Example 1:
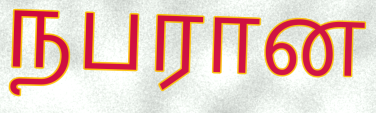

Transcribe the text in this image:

நபரான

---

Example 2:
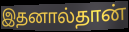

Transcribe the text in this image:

இதனால்தான்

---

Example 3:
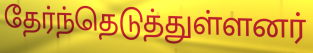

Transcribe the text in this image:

தேர்ந்தெடுத்துள்ளனர்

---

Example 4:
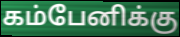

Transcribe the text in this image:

கம்பேனிக்கு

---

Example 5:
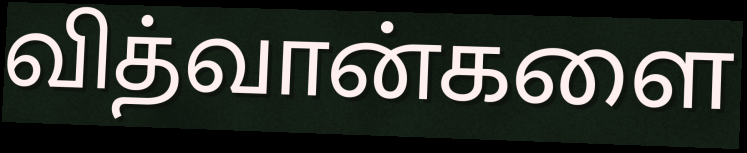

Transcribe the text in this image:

வித்வான்களை